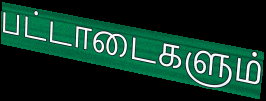
பட்டாடைகளும்